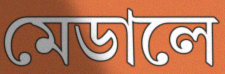
মেডালে